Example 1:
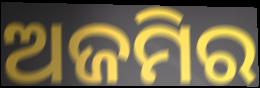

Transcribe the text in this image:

ଅଜମିର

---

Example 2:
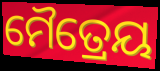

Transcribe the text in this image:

ମୈତ୍ରେୟ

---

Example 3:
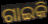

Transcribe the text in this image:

ଗାଇକି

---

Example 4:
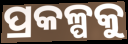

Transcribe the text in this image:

ପ୍ରକଳ୍ପକୁ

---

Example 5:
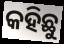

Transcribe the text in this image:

କହିଛୁ